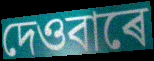
দেওবাৰে